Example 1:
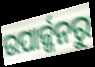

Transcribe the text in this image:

ଉପାର୍ଜ୍ଜନରୁ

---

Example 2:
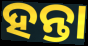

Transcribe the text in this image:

ହନ୍ତା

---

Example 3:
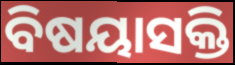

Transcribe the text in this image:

ବିଷୟାସକ୍ତି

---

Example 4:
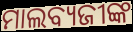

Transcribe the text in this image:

ମାଲବ୍ୟଜୀଙ୍କ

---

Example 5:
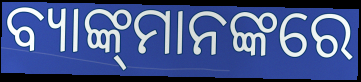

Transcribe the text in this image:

ବ୍ୟାଙ୍କ୍‌ମାନଙ୍କରେ